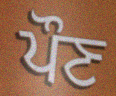
ਪੌਣ